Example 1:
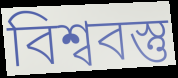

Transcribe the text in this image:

বিশ্ববস্তু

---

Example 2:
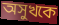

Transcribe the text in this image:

অসুখকে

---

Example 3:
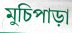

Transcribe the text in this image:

মুচিপাড়া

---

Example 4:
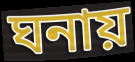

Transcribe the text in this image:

ঘনায়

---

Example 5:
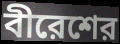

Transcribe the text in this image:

বীরেশের